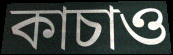
কাচাও